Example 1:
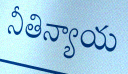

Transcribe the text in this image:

నీతిన్యాయ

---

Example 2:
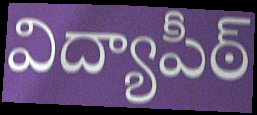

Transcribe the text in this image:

విద్యాపీఠ్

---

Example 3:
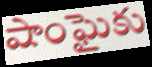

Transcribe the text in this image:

షాంఘైకు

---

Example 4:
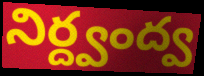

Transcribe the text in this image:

నిర్ద్వంద్వ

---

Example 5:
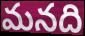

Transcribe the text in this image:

మనది